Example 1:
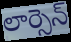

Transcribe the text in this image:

లార్సెన్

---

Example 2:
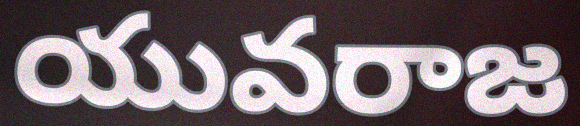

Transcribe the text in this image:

యువరాజ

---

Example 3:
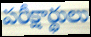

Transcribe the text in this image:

పరీక్షార్థులు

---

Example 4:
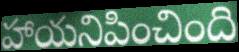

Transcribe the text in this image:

హాయనిపించింది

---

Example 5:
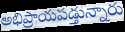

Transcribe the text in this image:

అభిప్రాయపడ్తున్నారు